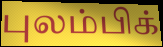
புலம்பிக்